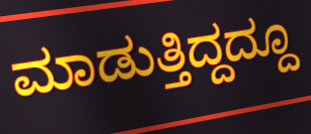
ಮಾಡುತ್ತಿದ್ದದ್ದೂ